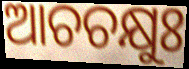
ଆଚଚକ୍ଷୁଃ